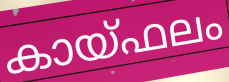
കായ്ഫലം